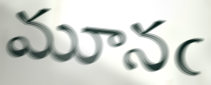
మూనఁ